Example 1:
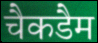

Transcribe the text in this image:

चैकडैम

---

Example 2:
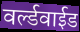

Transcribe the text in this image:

वर्ल्डवाईड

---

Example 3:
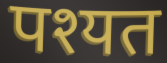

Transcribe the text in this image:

पश्यत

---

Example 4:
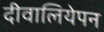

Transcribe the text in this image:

दीवालियेपन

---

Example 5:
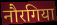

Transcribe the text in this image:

नौरगिया